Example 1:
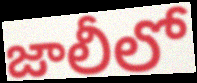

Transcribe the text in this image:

జాలీలో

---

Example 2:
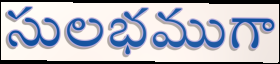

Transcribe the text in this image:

సులభముగా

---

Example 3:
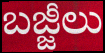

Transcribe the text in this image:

బజ్జీలు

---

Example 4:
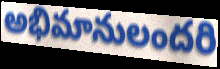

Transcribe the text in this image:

అభిమానులందరి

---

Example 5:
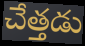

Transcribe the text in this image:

చేత్తడు